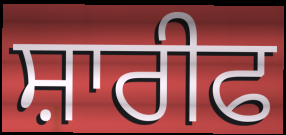
ਸ਼ਾਰੀਫ